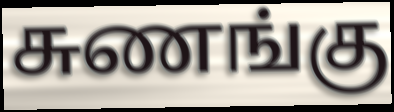
சுணங்கு